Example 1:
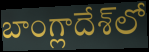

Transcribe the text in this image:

బాంగ్లాదేశ్‌లో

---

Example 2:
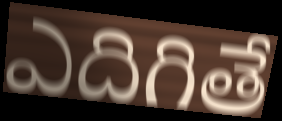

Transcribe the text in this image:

ఎదిగితే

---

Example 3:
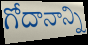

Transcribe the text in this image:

గోదానాన్ని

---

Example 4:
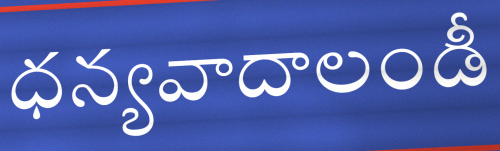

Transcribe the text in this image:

ధన్యవాదాలండీ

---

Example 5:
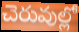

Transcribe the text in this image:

చెరువుల్లో